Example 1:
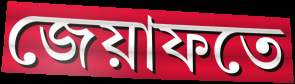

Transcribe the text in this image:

জেয়াফতে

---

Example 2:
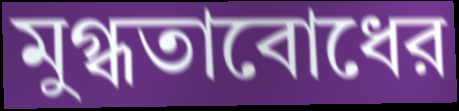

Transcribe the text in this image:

মুগ্ধতাবোধের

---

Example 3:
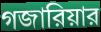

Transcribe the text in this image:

গজারিয়ার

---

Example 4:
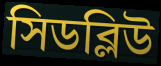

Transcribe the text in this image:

সিডব্লিউ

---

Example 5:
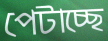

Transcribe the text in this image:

পেটাচ্ছে